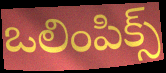
ఒలింపిక్స్